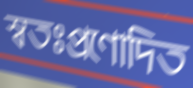
স্বতঃপ্রণোদিত